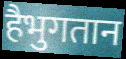
हैभुगतान